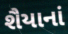
શૈયાનાં